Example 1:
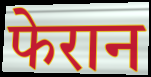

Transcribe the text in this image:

फेरान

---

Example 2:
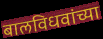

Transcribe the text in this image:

बालविधवांच्या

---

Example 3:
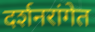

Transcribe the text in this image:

दर्शनरांगेत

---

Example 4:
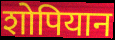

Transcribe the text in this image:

शोपियान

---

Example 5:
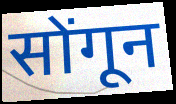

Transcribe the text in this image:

सोंगून